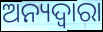
ଅନ୍ୟଦ୍ୱାରା